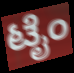
ಟೈಂ